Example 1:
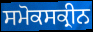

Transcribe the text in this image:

ਸਮੋਕਸਕ੍ਰੀਨ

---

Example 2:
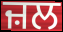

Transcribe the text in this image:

ਜ਼ਲ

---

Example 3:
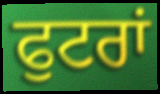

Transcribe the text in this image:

ਫੁਟਰਾਂ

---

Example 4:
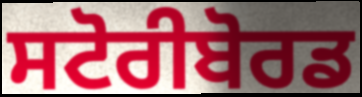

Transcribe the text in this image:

ਸਟੋਰੀਬੋਰਡ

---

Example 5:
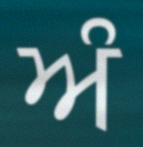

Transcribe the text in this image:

ਅੰ